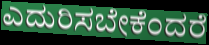
ಎದುರಿಸಬೇಕೆಂದರೆ